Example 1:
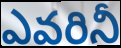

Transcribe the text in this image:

ఎవరినీ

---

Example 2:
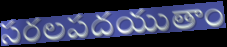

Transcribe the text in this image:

సరలపదయుతాం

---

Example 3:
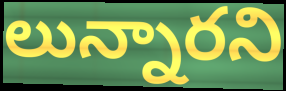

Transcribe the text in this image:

లున్నారని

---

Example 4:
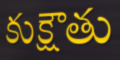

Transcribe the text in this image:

కుక్షౌతు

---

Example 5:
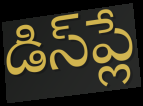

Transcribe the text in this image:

డిస్‌ప్లే